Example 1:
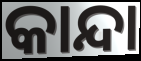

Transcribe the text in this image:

କାନ୍ଦା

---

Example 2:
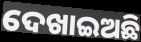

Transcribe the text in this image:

ଦେଖାଇଅଛି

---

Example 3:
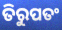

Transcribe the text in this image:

ତିରୁପତଂ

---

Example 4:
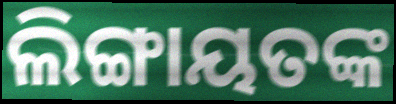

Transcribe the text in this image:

ଲିଙ୍ଗାୟତଙ୍କ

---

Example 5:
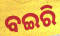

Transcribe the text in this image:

ବଇରି